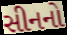
સીનનો